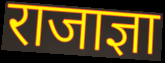
राजाज्ञा